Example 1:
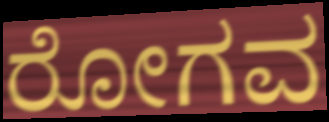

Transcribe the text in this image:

ರೋಗವ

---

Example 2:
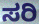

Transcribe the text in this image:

ಸರಿ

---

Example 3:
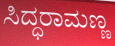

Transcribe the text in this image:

ಸಿದ್ಧರಾಮಣ್ಣ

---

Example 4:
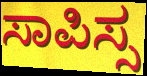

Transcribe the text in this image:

ಸಾಪಿಸ್ಸ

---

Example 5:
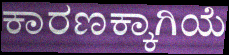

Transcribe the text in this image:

ಕಾರಣಕ್ಕಾಗಿಯೆ